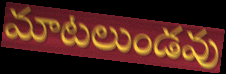
మాటలుండవు